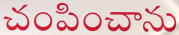
చంపించాను